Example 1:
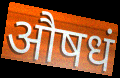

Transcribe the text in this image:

औषधं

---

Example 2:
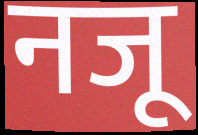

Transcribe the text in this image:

नजू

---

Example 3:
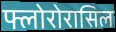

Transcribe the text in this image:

फ्लोरोरासिल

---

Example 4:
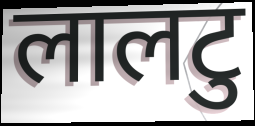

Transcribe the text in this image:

लालटु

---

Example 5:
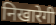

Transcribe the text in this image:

निखारेगी